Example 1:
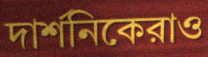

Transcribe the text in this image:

দার্শনিকেরাও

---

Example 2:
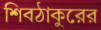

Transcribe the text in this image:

শিবঠাকুরের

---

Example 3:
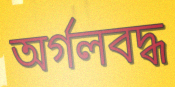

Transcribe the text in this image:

অর্গলবদ্ধ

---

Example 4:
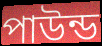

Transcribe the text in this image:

পাউন্ড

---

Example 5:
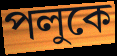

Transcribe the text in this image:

পলুকে